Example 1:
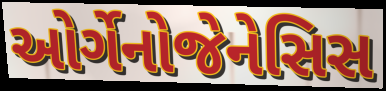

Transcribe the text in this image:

ઓર્ગેનોજેનેસિસ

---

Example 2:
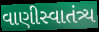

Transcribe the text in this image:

વાણીસ્વાતંત્ર્ય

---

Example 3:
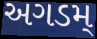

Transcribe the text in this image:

અગડમ્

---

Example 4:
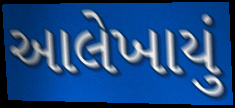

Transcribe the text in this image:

આલેખાયું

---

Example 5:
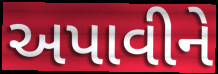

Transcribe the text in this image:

અપાવીને